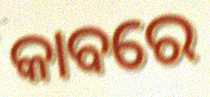
କାବରେ